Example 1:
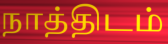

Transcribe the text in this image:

நாத்திடம்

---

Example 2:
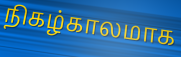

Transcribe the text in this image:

நிகழ்காலமாக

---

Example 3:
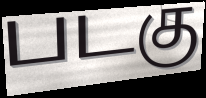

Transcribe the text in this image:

படகு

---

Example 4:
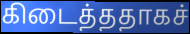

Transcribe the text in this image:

கிடைத்ததாகச்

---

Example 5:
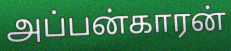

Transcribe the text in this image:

அப்பன்காரன்